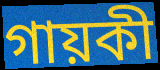
গায়কী